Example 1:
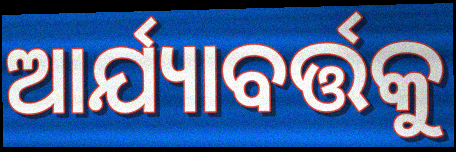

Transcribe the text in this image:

ଆର୍ଯ୍ୟାବର୍ତ୍ତକୁ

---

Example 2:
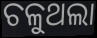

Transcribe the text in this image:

ଚଳୁଥଲା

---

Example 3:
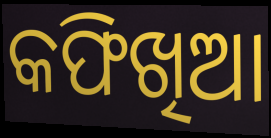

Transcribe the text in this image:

କଫିଖିଆ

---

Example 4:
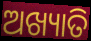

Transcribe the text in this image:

ଅଖ୍ୟାତି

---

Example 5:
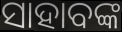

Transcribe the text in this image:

ସାହାବଙ୍କ